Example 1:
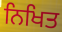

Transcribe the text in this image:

ਨਿਖਿਤ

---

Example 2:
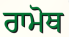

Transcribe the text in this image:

ਰਾਮੋਥ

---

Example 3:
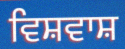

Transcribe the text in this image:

ਵਿਸ਼ਵਾਸ਼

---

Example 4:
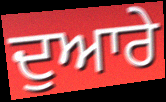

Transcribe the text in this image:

ਦੁਆਰੇ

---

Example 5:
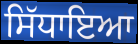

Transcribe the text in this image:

ਸਿੱਧਾਇਆ